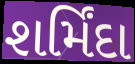
શર્મિંદા